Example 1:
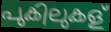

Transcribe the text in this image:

പുകിലുകള്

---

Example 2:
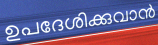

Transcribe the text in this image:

ഉപദേശിക്കുവാൻ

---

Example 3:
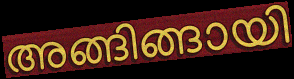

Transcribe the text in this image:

അങ്ങിങ്ങായി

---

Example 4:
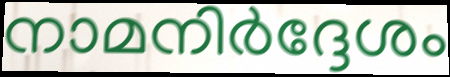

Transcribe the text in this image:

നാമനിർദ്ദേശം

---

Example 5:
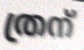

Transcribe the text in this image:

ത്രന്